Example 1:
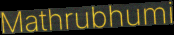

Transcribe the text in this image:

Mathrubhumi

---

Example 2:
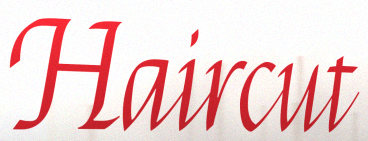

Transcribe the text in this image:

Haircut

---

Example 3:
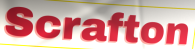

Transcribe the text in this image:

Scrafton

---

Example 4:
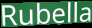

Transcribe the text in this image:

Rubella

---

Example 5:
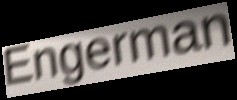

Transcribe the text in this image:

Engerman